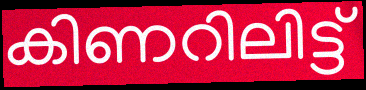
കിണറിലിട്ട്